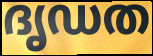
ദൃഡത